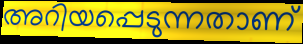
അറിയപ്പെടുന്നതാണ്